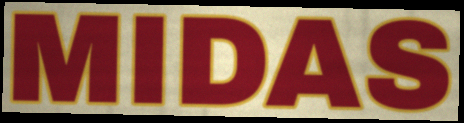
MIDAS